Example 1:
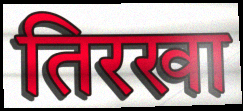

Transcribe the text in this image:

तिरखा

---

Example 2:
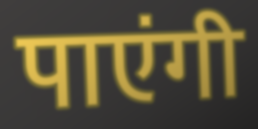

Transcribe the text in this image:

पाएंगी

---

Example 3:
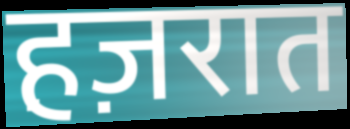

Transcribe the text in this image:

ह़ज़रात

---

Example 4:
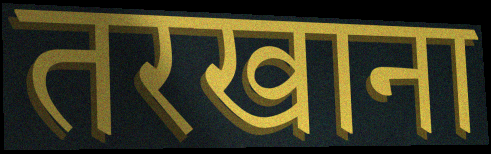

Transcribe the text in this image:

तरखाना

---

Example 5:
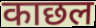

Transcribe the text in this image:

काछल